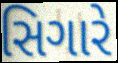
સિગારે